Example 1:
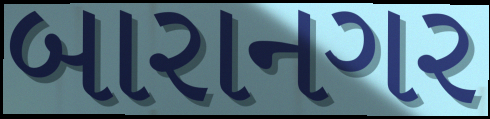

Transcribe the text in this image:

બારાનગર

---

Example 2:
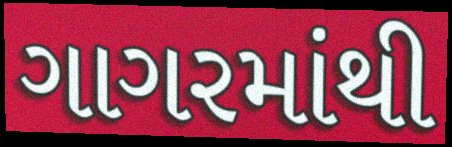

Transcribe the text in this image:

ગાગરમાંથી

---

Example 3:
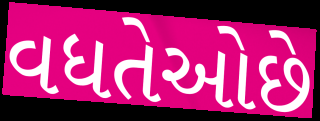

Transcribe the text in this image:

વધતેઓછે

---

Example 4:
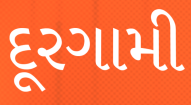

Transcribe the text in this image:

દૂરગામી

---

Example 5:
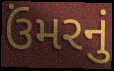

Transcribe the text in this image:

ઉંમરનું